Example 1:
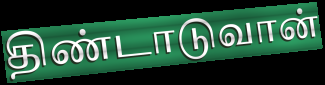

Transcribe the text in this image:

திண்டாடுவான்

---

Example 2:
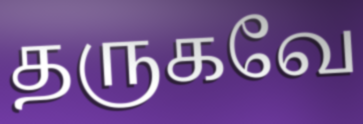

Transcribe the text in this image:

தருகவே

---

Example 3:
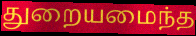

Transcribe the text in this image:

துறையமைந்த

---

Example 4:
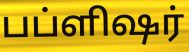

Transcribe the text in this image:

பப்ளிஷர்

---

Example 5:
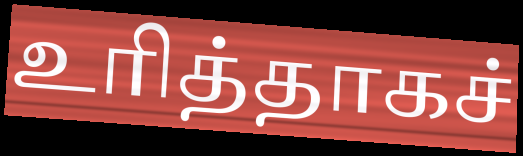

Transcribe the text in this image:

உரித்தாகச்